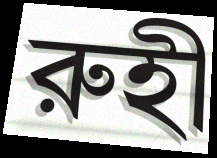
রুহী